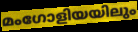
മംഗോളിയയിലും